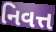
નિવત્ત